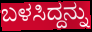
ಬಳಸಿದ್ದನ್ನು